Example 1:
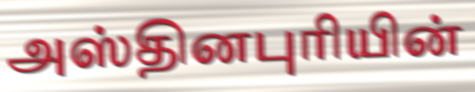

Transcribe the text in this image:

அஸ்தினபுரியின்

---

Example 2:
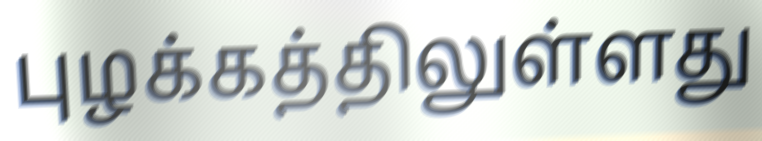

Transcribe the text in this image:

புழக்கத்திலுள்ளது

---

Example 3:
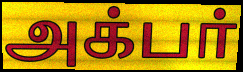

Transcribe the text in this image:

அக்பர்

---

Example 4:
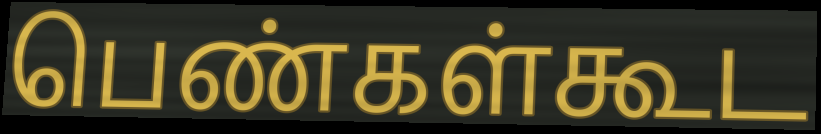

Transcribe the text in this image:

பெண்கள்கூட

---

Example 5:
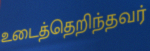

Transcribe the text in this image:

உடைத்தெறிந்தவர்